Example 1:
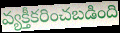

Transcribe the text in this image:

వ్యక్తీకరించబడింది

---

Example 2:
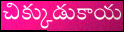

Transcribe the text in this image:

చిక్కుడుకాయ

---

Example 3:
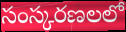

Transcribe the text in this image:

సంస్కరణలలో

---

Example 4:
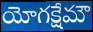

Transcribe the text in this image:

యోగక్షేమౌ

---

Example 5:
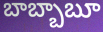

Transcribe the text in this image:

బాబ్బాబూ